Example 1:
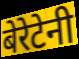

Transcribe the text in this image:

बेरेटेनी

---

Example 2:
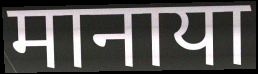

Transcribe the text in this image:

मानाया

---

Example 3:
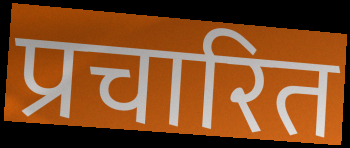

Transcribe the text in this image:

प्रचारित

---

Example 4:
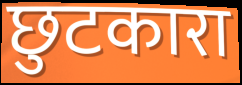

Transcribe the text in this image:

छुटकारा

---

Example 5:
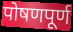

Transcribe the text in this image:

पोषणपूर्ण